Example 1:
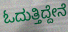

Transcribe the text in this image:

ಓದುತ್ತಿದ್ದೇನೆ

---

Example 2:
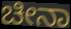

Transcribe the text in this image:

ಚೀನಾ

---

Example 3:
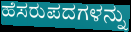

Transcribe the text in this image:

ಹೆಸರುಪದಗಳನ್ನು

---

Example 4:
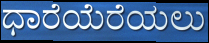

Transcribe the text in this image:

ಧಾರೆಯೆರೆಯಲು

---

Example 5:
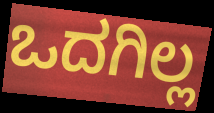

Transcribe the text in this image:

ಒದಗಿಲ್ಲ